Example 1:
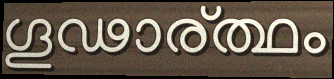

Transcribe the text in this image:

ഗൂഢാര്ത്ഥം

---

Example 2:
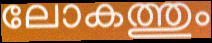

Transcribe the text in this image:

ലോകത്തും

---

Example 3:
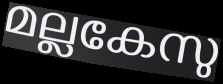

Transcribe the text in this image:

മല്ലകേസു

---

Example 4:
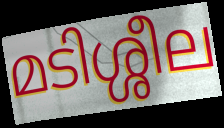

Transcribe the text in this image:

മടിശ്ശീല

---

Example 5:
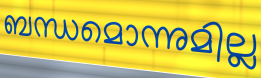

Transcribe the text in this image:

ബന്ധമൊന്നുമില്ല